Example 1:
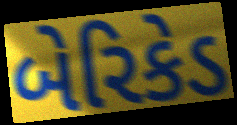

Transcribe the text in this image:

બેરિકેડ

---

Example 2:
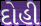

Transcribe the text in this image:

દોહી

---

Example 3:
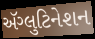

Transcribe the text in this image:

ઍગ્લુટિનેશન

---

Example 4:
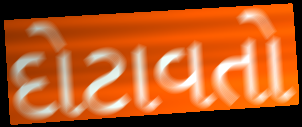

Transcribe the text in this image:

દોટાવતો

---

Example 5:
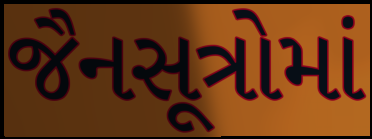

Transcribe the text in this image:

જૈનસૂત્રોમાં